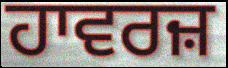
ਹਾਵਰਜ਼